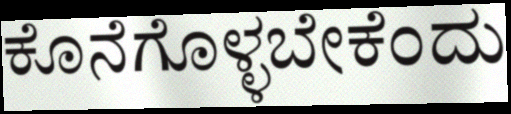
ಕೊನೆಗೊಳ್ಳಬೇಕೆಂದು